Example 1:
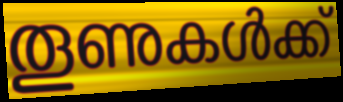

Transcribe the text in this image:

തൂണുകൾക്ക്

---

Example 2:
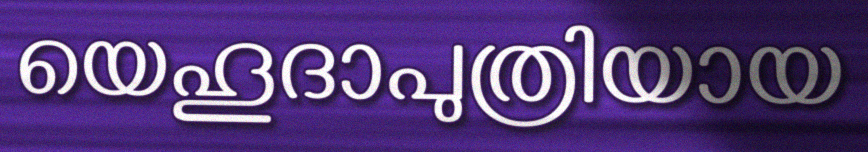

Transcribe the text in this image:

യെഹൂദാപുത്രിയായ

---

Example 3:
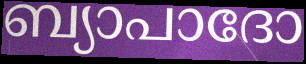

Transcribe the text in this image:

ബ്യാപാദോ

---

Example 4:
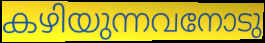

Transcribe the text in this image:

കഴിയുന്നവനോടു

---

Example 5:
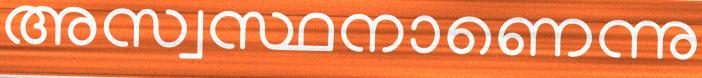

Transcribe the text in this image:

അസ്വസ്ഥനാണെന്നു